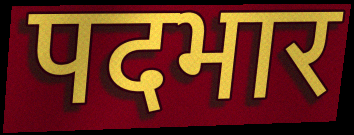
पदभार